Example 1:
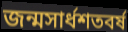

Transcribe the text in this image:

জন্মসার্ধশতবর্ষ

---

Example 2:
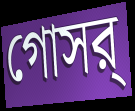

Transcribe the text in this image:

গোসর্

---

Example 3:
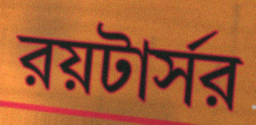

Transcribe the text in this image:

রয়টার্সর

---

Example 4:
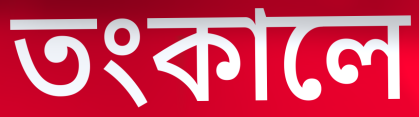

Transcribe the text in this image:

তংকালে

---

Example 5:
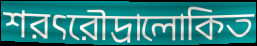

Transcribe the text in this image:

শরৎরৌদ্রালোকিত